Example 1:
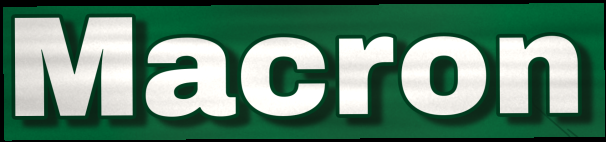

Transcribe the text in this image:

Macron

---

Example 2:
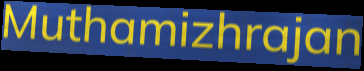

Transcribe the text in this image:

Muthamizhrajan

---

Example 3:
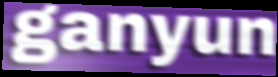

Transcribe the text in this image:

ganyun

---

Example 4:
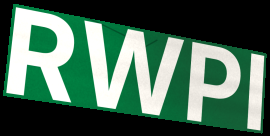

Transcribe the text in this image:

RWPI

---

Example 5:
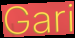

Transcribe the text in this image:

Gari